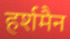
हर्शमैन